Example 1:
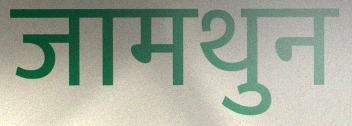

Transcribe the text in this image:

जामथुन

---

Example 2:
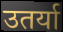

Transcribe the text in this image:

उतर्या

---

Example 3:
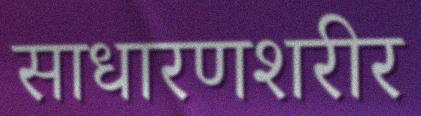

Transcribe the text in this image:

साधारणशरीर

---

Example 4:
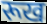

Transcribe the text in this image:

रूख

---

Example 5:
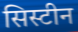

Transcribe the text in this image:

सिस्टीन